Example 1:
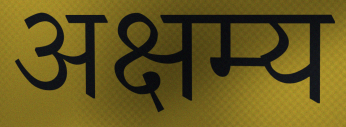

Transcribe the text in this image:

अक्षम्य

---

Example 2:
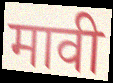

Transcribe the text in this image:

मावी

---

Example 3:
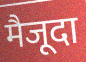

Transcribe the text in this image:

मैजूदा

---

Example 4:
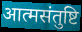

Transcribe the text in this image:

आत्मसंतुष्टि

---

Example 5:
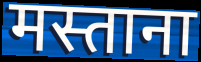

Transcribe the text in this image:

मस्ताना